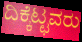
ದಿಕ್ಕೆಟ್ಟವರು